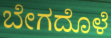
ಬೇಗದೊಳೆ